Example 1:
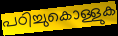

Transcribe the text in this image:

പഠിച്ചുകൊള്ളുക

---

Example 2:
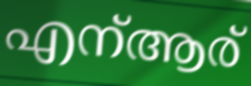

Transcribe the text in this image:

എന്ആര്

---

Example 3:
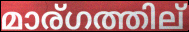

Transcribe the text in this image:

മാര്ഗത്തില്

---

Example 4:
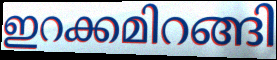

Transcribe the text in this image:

ഇറക്കമിറങ്ങി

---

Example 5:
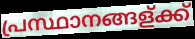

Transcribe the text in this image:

പ്രസ്ഥാനങ്ങള്ക്ക്